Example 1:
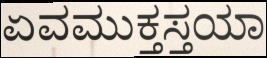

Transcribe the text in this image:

ಏವಮುಕ್ತಸ್ತಯಾ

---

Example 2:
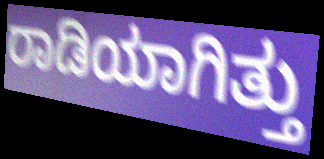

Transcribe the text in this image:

ರಾಡಿಯಾಗಿತ್ತು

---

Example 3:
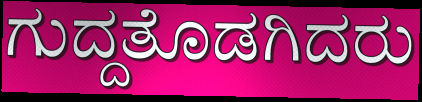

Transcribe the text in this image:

ಗುದ್ದತೊಡಗಿದರು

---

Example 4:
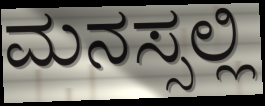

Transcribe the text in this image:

ಮನಸ್ಸಲ್ಲಿ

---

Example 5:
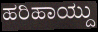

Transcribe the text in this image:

ಹರಿಹಾಯ್ದು